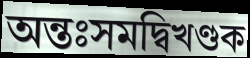
অন্তঃসমদ্বিখণ্ডক